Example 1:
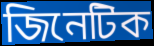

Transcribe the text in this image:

জিনেটিক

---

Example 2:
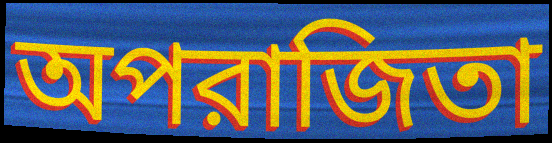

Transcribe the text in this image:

অপরাজিতা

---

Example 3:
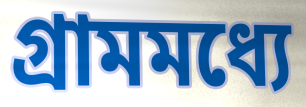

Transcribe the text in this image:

গ্রামমধ্যে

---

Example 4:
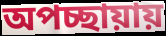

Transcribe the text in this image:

অপচ্ছায়ায়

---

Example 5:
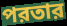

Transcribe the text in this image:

পরতার